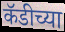
कॅडीच्या